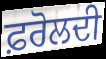
ਫ਼ਰੋਲਦੀ